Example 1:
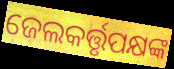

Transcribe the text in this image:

ଜେଲକର୍ତ୍ତୃପକ୍ଷଙ୍କ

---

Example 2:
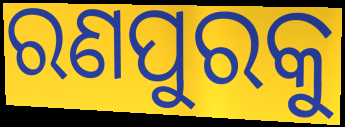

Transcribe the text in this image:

ରଣପୁରକୁ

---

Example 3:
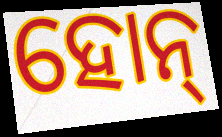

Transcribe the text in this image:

ହୋନ୍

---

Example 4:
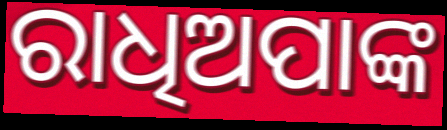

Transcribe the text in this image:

ରାଧିଅପାଙ୍କ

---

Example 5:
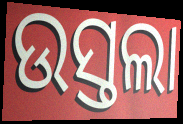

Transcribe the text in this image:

ଉସ୍ତଲା